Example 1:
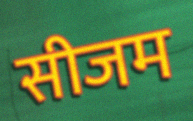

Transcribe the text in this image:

सीजम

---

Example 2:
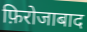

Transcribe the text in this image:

फ़िरोजाबाद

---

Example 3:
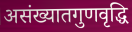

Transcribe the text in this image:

असंख्यातगुणवृद्धि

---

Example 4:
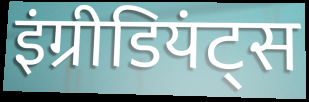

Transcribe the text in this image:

इंग्रीडियंट्स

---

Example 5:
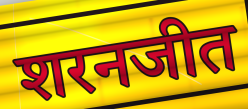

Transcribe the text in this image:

शरनजीत